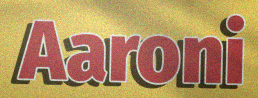
Aaroni